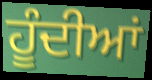
ਹੂੰਦੀਆਂ